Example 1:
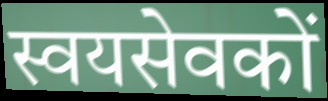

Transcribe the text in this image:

स्वयसेवकों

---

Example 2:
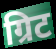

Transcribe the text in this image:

ग्रिट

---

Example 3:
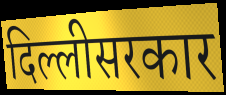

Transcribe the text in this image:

दिल्लीसरकार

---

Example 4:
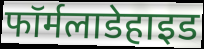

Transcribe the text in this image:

फॉर्मलाडेहाइड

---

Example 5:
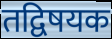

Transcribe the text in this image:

तद्विषयक